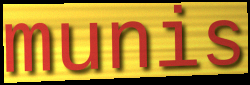
munis